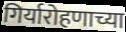
गिर्यारोहणाच्या